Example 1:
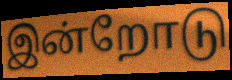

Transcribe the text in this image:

இன்றோடு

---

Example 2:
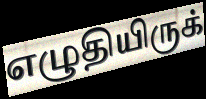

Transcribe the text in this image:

எழுதியிருக்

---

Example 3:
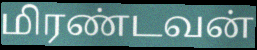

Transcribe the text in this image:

மிரண்டவன்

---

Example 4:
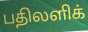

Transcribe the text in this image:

பதிலளிக்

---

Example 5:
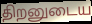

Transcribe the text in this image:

திறனுடைய